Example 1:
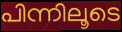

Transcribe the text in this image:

പിന്നിലൂടെ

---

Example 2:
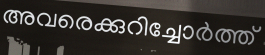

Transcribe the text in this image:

അവരെക്കുറിച്ചോർത്ത്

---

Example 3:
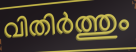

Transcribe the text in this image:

വിതിർത്തും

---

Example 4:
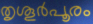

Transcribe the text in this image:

തൃശൂർപൂരം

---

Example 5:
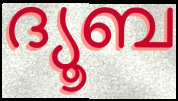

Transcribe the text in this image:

ദ്യൂബ